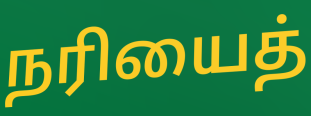
நரியைத்